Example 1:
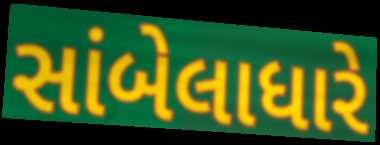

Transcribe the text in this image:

સાંબેલાધારે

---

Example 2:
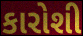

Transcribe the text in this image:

કારોશી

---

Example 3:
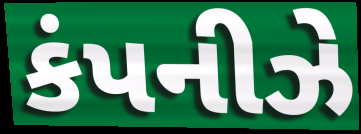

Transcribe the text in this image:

કંપનીઝે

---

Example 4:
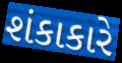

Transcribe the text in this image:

શંકાકારે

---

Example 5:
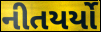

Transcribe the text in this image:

નીતયર્યો